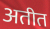
अतीत